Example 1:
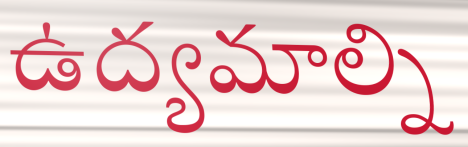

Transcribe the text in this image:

ఉద్యమాల్ని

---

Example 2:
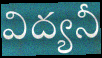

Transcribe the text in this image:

విద్యనీ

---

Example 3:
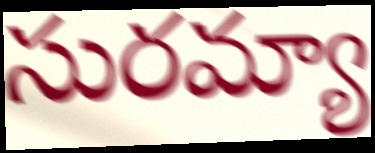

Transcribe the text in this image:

సురమ్యా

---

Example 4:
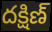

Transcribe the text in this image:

దక్షిణ్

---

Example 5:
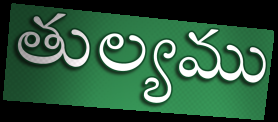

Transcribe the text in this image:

తుల్యము